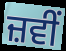
ਜ਼ਵੀਂ